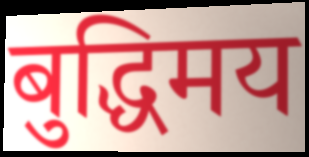
बुद्धिमय